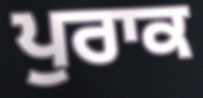
ਪੁਰਾਕ